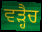
ਵੜ੍ਹੈਚ